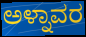
ಅಳ್ನಾವರ